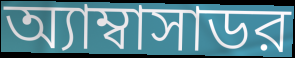
অ্যাম্বাসাডর